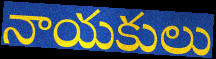
నాయకులు